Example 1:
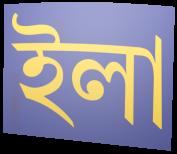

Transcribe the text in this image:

ইলা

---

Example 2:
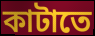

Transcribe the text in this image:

কাটাতে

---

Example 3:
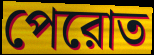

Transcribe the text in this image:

পেরোত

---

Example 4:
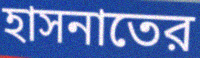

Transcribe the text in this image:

হাসনাতের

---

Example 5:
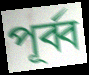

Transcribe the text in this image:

পূর্ব্ব